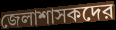
জেলাশাসকদের